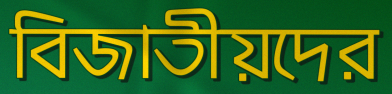
বিজাতীয়দের